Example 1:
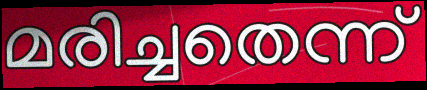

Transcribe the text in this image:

മരിച്ചതെന്ന്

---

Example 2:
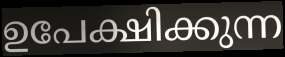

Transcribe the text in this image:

ഉപേക്ഷിക്കുന്ന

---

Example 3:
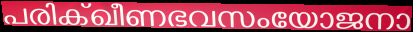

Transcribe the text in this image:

പരിക്ഖീണഭവസംയോജനാ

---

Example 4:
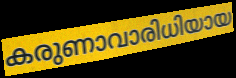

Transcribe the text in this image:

കരുണാവാരിധിയായ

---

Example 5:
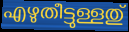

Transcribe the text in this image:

എഴുതീട്ടുള്ളതു്